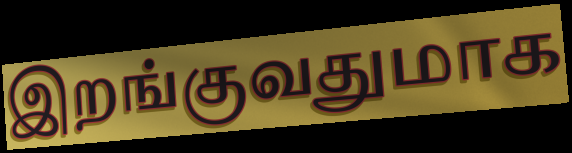
இறங்குவதுமாக